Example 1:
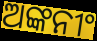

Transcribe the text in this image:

ଅଙ୍କନୀଂ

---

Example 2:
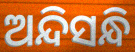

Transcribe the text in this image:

ଅନ୍ଦିସନ୍ଧି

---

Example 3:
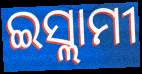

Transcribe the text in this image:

ଇସ୍ଲାମୀ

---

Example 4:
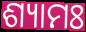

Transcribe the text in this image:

ଶ୍ୟାମଃ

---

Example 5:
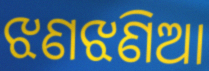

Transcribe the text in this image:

ଝଣଝଣିଆ